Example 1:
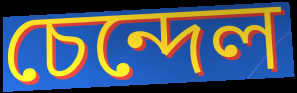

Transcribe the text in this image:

চেন্দেল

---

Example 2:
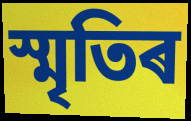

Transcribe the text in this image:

স্মৃতিৰ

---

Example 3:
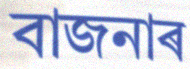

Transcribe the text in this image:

বাজনাৰ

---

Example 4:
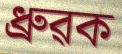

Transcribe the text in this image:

ধ্ৰুৱক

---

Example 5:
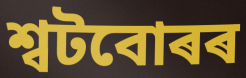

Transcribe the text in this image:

শ্বটবোৰৰ